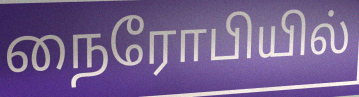
நைரோபியில்